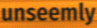
unseemly